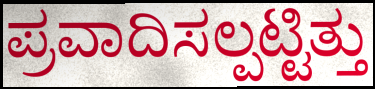
ಪ್ರವಾದಿಸಲ್ಪಟ್ಟಿತ್ತು